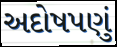
અદોષપણું